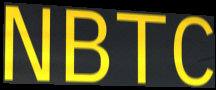
NBTC